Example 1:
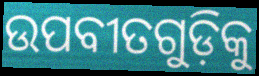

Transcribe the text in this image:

ଉପବୀତଗୁଡ଼ିକୁ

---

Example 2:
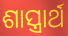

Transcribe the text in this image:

ଶାସ୍ତ୍ରାର୍ଥ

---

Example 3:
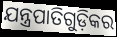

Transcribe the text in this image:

ଯନ୍ତ୍ରପାତିଗୁଡ଼ିକର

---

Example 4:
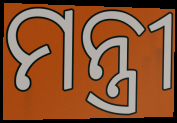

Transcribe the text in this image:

ମନ୍ତ୍ରୀ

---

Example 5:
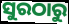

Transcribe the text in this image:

ସୁରଠାରୁ